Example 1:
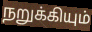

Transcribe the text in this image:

நறுக்கியும்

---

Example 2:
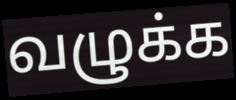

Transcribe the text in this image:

வழுக்க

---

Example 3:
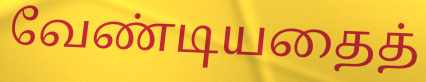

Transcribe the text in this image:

வேண்டியதைத்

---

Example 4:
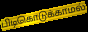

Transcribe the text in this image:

பிடிகொடுக்காமல்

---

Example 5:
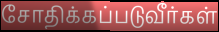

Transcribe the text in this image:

சோதிக்கப்படுவீர்கள்